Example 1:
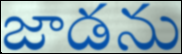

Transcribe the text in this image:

జాడను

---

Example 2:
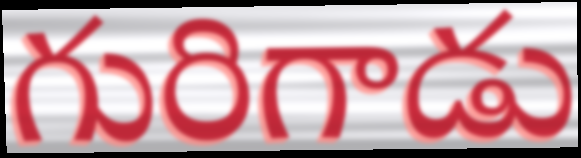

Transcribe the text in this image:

గురిగాడు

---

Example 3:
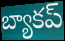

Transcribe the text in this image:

బ్యాకప్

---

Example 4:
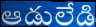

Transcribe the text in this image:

ఆడులేడి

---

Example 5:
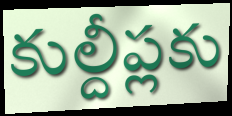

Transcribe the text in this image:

కుల్దీప్లకు